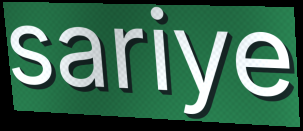
sariye